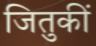
जितुकीं